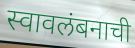
स्वावलंबनाची